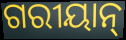
ଗରୀୟାନ୍